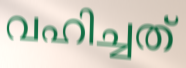
വഹിച്ചത്